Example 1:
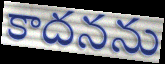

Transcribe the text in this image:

కాదనను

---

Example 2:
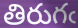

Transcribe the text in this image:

తిరుగఁ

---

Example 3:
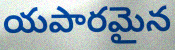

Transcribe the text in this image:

యపారమైన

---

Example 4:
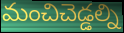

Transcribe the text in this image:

మంచిచెడ్డల్ని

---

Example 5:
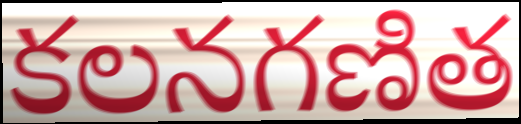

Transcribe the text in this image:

కలనగణిత